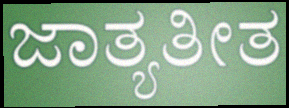
ಜಾತ್ಯತೀತ